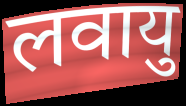
लवायु